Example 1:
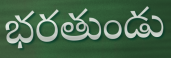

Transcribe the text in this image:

భరతుండు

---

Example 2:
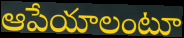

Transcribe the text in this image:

ఆపేయాలంటూ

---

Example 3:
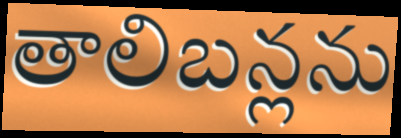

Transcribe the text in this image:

తాలిబన్లను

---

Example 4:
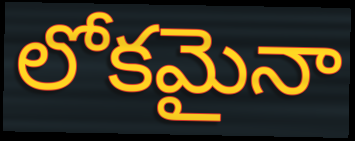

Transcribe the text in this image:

లోకమైనా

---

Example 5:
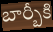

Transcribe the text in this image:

బార్బీకి